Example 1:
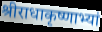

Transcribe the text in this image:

श्रीराधाकृष्णाभ्यां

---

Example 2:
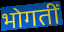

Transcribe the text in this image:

भोगतीं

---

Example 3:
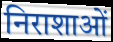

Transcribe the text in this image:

निराशाओं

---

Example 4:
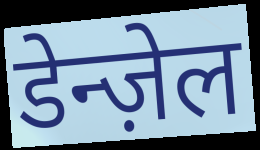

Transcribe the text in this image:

डेन्ज़ेल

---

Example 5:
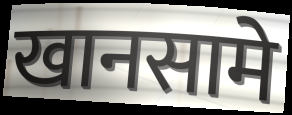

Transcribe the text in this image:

खानसामे